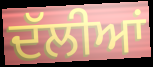
ਦੱਲੀਆਂ